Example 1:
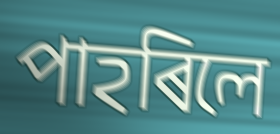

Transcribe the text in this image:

পাহৰিলে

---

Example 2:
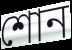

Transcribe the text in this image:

শোন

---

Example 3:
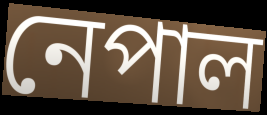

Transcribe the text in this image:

নেপাল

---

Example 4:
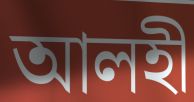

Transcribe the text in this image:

আলহী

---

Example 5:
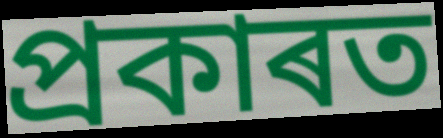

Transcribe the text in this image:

প্ৰকাৰত